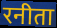
रनीता